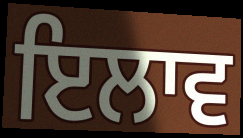
ਇਲਾਵ